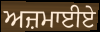
ਅਜ਼ਮਾਈਏ